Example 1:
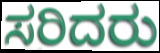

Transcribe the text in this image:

ಸರಿದರು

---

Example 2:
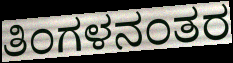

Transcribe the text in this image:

ತಿಂಗಳನಂತರ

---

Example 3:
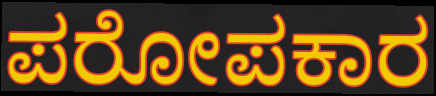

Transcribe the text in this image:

ಪರೋಪಕಾರ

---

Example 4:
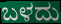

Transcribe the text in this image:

ಬಳದು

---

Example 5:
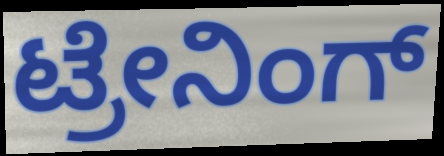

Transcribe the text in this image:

ಟ್ರೇನಿಂಗ್